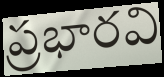
ప్రభారవి